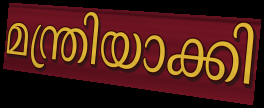
മന്ത്രിയാക്കി